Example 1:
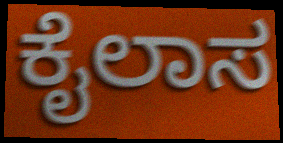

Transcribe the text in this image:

ಕೈಲಾಸ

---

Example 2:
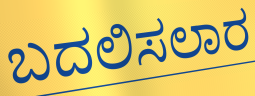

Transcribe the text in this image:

ಬದಲಿಸಲಾರ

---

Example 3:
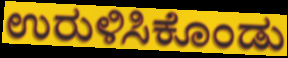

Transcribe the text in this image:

ಉರುಳಿಸಿಕೊಂಡು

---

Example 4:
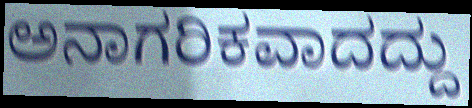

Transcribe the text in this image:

ಅನಾಗರಿಕವಾದದ್ದು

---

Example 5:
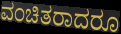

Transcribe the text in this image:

ವಂಚಿತರಾದರೂ